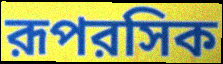
রূপরসিক